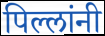
पिल्लांनी